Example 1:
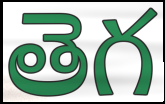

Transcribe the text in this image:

తెగ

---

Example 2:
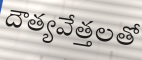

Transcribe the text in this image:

దౌత్యవేత్తలతో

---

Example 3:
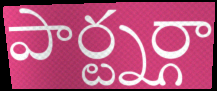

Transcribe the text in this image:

పార్ట్నర్గా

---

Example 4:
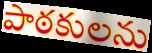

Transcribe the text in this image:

పాఠకులను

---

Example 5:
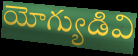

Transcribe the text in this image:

యోగ్యుడివి